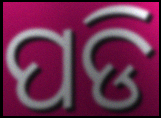
ପଡି